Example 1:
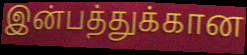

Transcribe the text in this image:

இன்பத்துக்கான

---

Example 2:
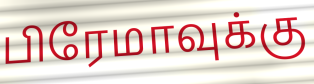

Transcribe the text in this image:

பிரேமாவுக்கு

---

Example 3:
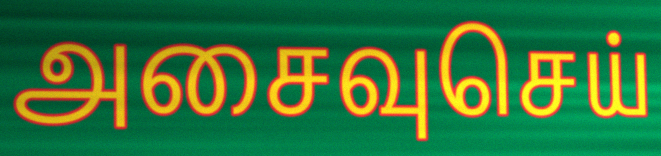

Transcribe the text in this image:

அசைவுசெய்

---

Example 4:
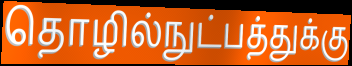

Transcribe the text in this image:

தொழில்நுட்பத்துக்கு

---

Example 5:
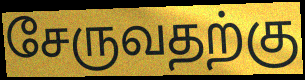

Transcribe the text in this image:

சேருவதற்கு